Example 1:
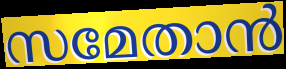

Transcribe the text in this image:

സമേതാൻ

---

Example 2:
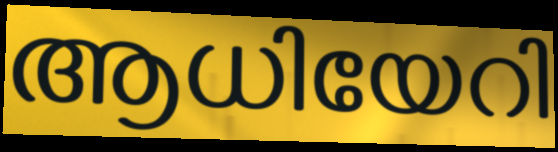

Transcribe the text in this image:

ആധിയേറി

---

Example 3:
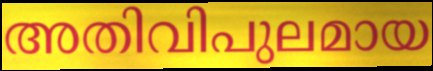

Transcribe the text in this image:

അതിവിപുലമായ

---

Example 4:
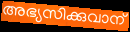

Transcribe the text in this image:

അഭ്യസിക്കുവാന്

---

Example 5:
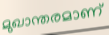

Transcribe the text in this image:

മുഖാന്തരമാണ്